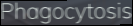
Phagocytosis